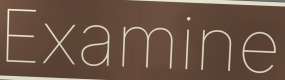
Examine